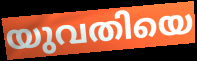
യുവതിയെ